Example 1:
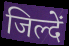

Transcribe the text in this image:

जिल्दें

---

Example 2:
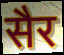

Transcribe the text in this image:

सैर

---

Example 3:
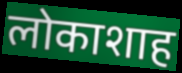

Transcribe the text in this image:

लोकाशाह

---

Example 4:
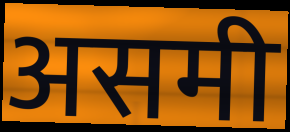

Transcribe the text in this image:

असमी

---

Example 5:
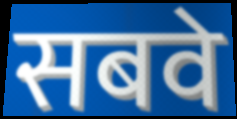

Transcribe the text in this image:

सबवे